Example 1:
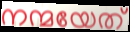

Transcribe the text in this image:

നന്മയേത്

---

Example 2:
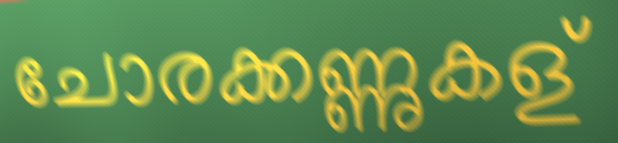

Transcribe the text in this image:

ചോരക്കണ്ണുകള്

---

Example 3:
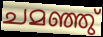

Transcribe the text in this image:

ചമഞ്ഞു്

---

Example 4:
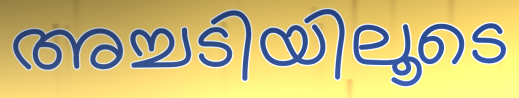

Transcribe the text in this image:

അച്ചടിയിലൂടെ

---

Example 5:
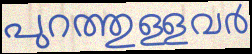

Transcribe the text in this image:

പുറത്തുള്ളവർ